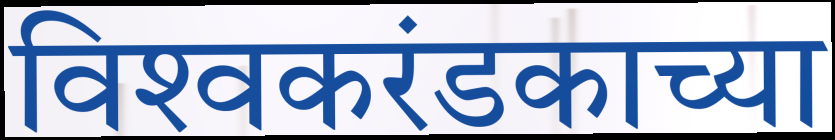
विश्‍वकरंडकाच्या